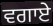
ਵਗਾਏ